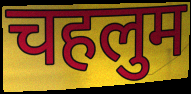
चहलुम